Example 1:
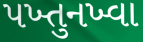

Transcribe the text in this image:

પખ્તુનખ્વા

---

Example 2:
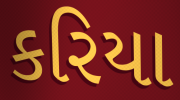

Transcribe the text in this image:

કરિયા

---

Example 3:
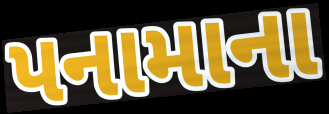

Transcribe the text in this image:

પનામાના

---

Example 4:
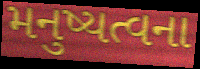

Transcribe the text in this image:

મનુષ્યત્વના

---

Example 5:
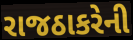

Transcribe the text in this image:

રાજઠાકરેની